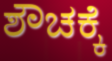
ಶೌಚಕ್ಕೆ